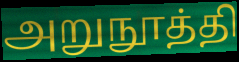
அறுநூத்தி